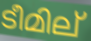
ടീമില്